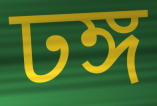
ঢঙ্গ